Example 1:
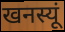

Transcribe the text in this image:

खनस्यूं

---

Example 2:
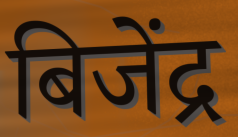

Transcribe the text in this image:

बिजेंद्र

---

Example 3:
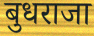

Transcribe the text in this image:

बुधराजा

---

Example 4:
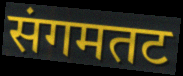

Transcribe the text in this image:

संगमतट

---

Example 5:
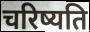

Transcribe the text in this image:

चरिष्यति